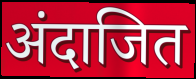
अंदाजित